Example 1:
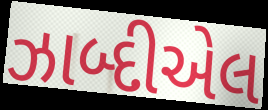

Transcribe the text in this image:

ઝાબ્દીએલ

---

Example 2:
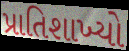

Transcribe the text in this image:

પ્રાતિશાખ્યો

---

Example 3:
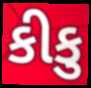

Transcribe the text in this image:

કીકુ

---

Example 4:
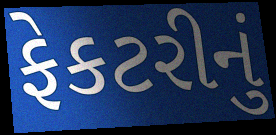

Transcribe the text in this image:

ફેકટરીનું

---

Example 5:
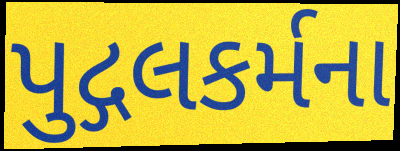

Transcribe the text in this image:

પુદ્ગલકર્મના